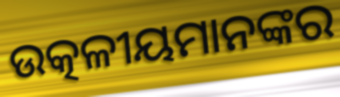
ଉତ୍କଳୀୟମାନଙ୍କର